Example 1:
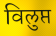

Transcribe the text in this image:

विलुप्त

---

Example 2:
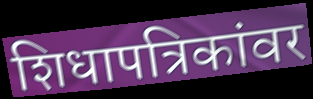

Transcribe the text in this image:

शिधापत्रिकांवर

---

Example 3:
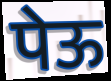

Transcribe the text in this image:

पेऊ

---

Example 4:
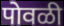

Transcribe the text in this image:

पोवळी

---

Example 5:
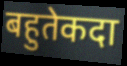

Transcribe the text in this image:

बहुतेकदा